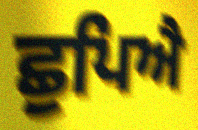
ਛੁਪਿਐ